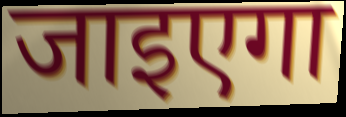
जाइएगा